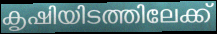
കൃഷിയിടത്തിലേക്ക്